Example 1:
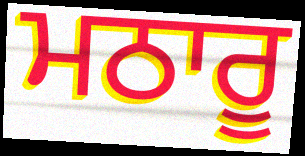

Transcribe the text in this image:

ਮਠਾਰੂ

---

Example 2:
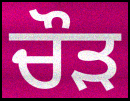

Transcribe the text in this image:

ਚੌੜ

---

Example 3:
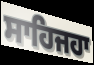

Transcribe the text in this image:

ਸਾਹਿਜਹਾ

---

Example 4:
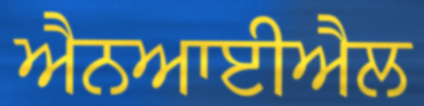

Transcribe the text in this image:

ਐਨਆਈਐਲ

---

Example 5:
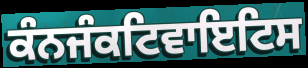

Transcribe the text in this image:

ਕੰਨਜੰਕਟਿਵਾਇਟਿਸ